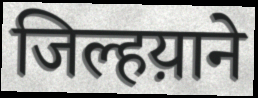
जिल्हय़ाने